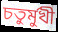
চতুর্মুখী